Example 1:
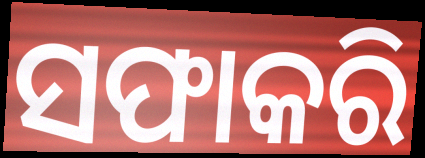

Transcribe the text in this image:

ସଫାକରି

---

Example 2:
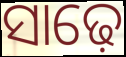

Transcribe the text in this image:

ସାଢ଼େ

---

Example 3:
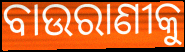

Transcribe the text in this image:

ବାଉରାଣୀକୁ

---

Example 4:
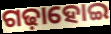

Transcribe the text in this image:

ଗଢ଼ାହୋଇ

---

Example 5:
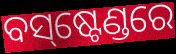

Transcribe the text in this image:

ବସ୍‌ଷ୍ଟେଣ୍ଡରେ